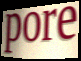
pore